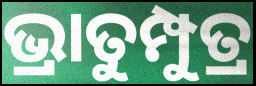
ଭ୍ରାତୁମ୍ପୁତ୍ର